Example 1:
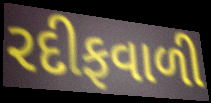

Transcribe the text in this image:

રદીફવાળી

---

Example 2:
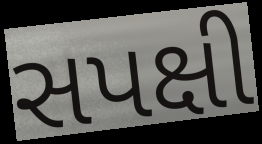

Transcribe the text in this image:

સપક્ષી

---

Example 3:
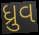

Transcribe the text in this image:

ધ્રુવ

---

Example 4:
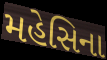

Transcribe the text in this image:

મહેસિના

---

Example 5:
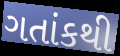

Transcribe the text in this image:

ગતાંકથી